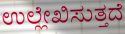
ಉಲ್ಲೇಖಿಸುತ್ತದೆ